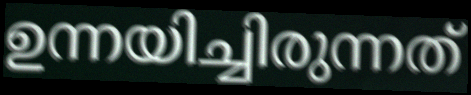
ഉന്നയിച്ചിരുന്നത്